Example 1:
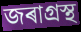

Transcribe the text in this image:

জৰাগ্ৰস্থ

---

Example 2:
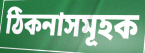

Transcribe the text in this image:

ঠিকনাসমূহক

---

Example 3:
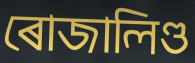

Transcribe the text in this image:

ৰোজালিণ্ড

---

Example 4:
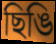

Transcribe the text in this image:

ছিঙি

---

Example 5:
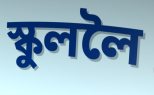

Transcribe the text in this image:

স্কুললৈ